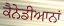
ਕੈਨੇਡੀਆਨਾਂ